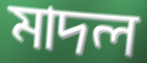
মাদল